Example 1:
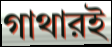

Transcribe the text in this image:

গাথারই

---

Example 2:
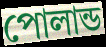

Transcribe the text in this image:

পোলান্ড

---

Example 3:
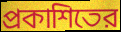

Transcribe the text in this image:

প্রকাশিতের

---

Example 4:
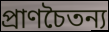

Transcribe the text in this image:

প্রাণচৈতন্য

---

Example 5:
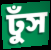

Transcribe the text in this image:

ঢুঁস